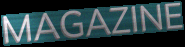
MAGAZINE